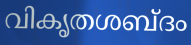
വികൃതശബ്ദം